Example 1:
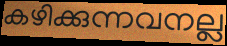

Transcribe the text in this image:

കഴിക്കുന്നവനല്ല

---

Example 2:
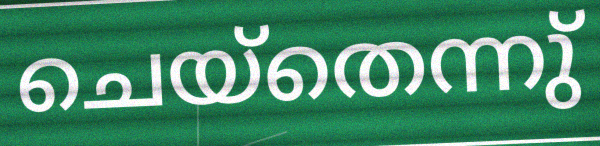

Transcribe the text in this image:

ചെയ്തെന്നു്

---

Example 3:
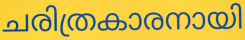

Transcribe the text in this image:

ചരിത്രകാരനായി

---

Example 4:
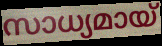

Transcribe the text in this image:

സാധ്യമായ്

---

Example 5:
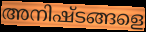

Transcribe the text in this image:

അനിഷ്ടങ്ങളെ